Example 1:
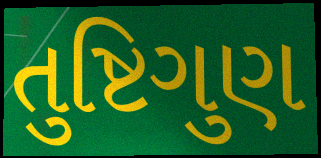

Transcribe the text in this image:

તુષ્ટિગુણ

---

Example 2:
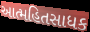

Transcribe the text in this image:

આત્મહિતસાધક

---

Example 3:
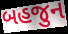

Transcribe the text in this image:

બહજુન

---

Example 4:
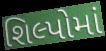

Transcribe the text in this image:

શિલ્પોમાં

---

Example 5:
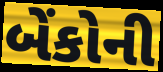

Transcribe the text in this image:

બેંકોની